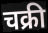
चक्री